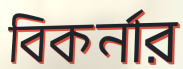
বিকর্নার